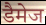
डैमेज